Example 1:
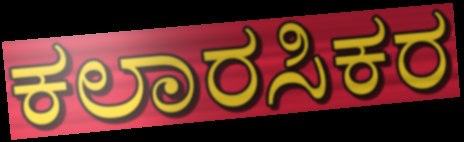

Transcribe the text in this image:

ಕಲಾರಸಿಕರ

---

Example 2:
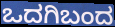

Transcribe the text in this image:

ಒದಗಿಬಂದ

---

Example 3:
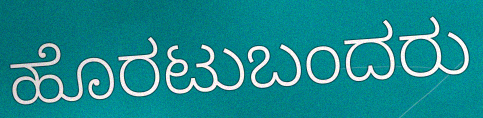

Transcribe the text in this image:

ಹೊರಟುಬಂದರು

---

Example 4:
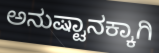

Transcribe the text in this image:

ಅನುಷ್ಟಾನಕ್ಕಾಗಿ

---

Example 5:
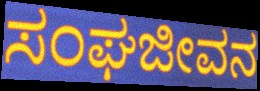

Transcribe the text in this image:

ಸಂಘಜೀವನ